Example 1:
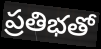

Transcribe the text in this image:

ప్రతిభతో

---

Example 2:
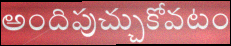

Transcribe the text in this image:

అందిపుచ్చుకోవటం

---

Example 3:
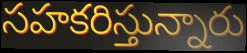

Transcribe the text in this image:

సహకరిస్తున్నారు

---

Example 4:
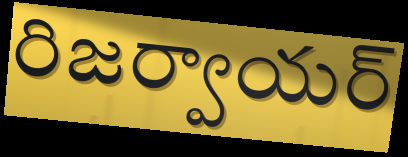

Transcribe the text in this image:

రిజర్వాయర్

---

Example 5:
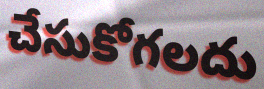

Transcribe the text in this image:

చేసుకోగలదు